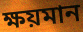
ক্ষয়মান